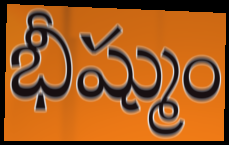
భీష్ముం